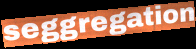
seggregation